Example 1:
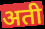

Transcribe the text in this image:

अती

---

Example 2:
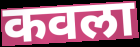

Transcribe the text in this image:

कवला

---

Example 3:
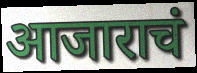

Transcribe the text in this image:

आजाराचं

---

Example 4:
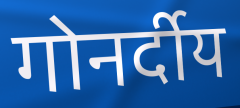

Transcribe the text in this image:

गोनर्दीय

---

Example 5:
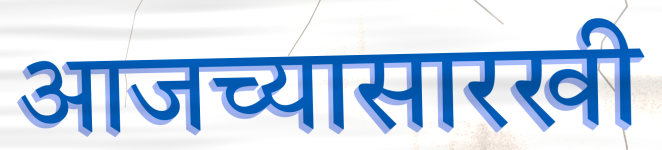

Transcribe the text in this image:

आजच्यासारखी